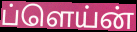
ப்ளெய்ன்